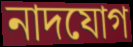
নাদযোগ